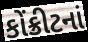
કોંક્રીટનાં